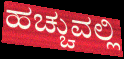
ಹಚ್ಚುವಲ್ಲಿ